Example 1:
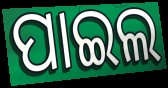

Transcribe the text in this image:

ପାଇଲ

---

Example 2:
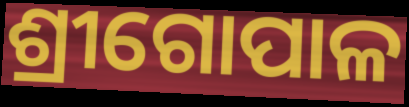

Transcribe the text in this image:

ଶ୍ରୀଗୋପାଳ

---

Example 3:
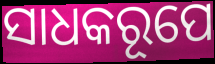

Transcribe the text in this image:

ସାଧକରୂପେ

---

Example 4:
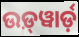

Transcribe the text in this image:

ଉଡ଼୍‍ୱାର୍ଡ଼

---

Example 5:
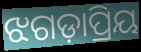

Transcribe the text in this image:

ଝଗଡ଼ାପ୍ରିୟ